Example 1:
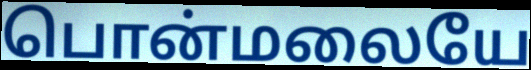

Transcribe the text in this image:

பொன்மலையே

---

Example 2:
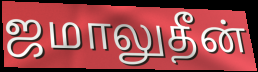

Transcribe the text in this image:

ஜமாலுதீன்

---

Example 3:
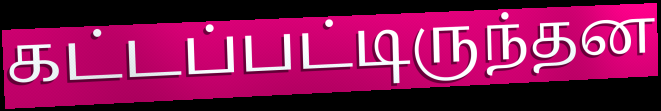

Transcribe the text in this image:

கட்டப்பட்டிருந்தன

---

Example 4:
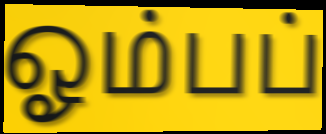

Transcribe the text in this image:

ஓம்பப்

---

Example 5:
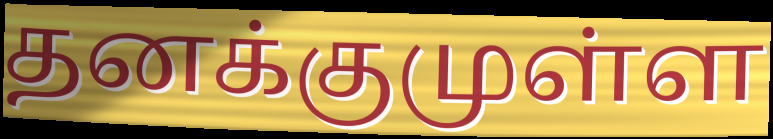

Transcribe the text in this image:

தனக்குமுள்ள